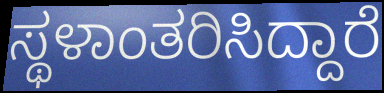
ಸ್ಥಳಾಂತರಿಸಿದ್ದಾರೆ